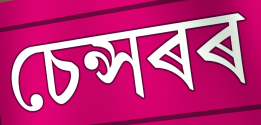
চেন্সৰৰ